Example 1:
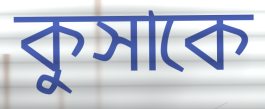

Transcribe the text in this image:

কুসাকে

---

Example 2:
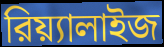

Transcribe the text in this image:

রিয়্যালাইজ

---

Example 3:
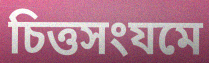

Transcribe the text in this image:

চিত্তসংযমে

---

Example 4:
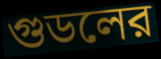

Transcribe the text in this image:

গুডলের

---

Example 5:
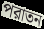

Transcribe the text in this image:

পরাতন